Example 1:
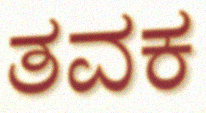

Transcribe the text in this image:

ತವಕ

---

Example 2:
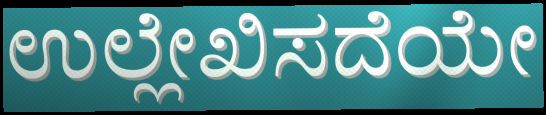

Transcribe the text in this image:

ಉಲ್ಲೇಖಿಸದೆಯೇ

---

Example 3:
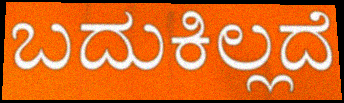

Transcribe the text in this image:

ಬದುಕಿಲ್ಲದೆ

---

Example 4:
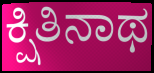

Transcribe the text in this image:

ಕ್ಷಿತಿನಾಥ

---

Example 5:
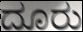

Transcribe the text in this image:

ದೂರು